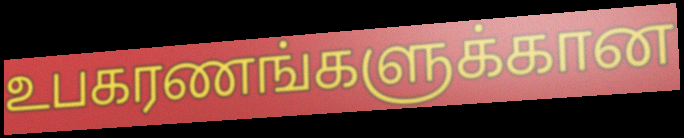
உபகரணங்களுக்கான